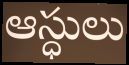
ఆస్ధులు